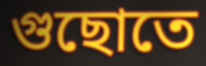
গুছোতে